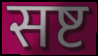
सष्ट